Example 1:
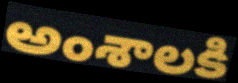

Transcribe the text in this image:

అంశాలకి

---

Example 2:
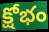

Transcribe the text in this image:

క్షోభం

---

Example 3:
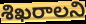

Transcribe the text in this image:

శిఖరాలని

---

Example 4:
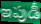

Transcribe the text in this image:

ఇపుడీ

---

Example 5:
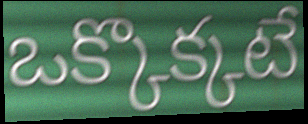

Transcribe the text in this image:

ఒక్కొక్కటే